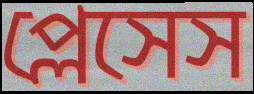
প্লেসেস